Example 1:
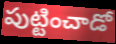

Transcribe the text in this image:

పుట్టించాడో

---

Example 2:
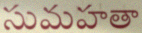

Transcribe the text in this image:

సుమహతా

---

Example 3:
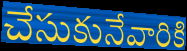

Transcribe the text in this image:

చేసుకునేవారికి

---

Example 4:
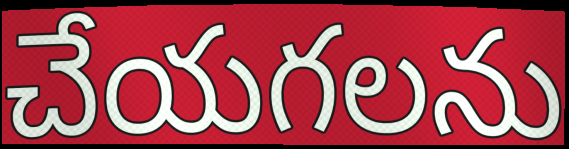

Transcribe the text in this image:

చేయగలను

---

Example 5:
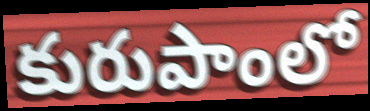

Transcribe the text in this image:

కురుపాంలో